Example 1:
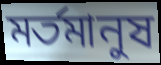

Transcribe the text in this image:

মর্তমানুষ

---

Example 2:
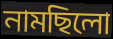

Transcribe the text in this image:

নামছিলো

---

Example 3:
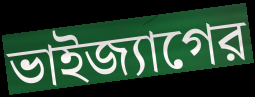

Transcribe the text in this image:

ভাইজ্যাগের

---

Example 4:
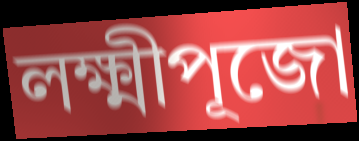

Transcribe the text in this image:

লক্ষ্মীপূজো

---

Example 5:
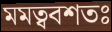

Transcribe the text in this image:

মমত্ববশতঃ